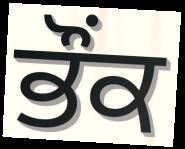
ਭੌਂਕ